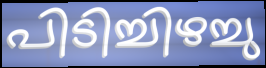
പിടിച്ചിഴച്ചു